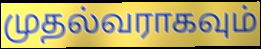
முதல்வராகவும்